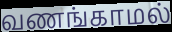
வணங்காமல்